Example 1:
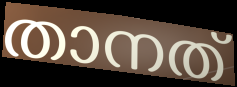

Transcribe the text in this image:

താനത്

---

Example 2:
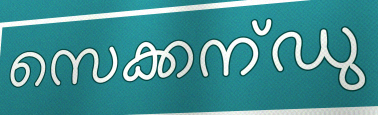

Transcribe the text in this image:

സെക്കന്ഡു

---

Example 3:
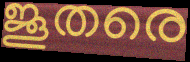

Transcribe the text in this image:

ജൂതരെ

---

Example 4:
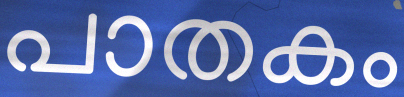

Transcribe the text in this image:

പാതകം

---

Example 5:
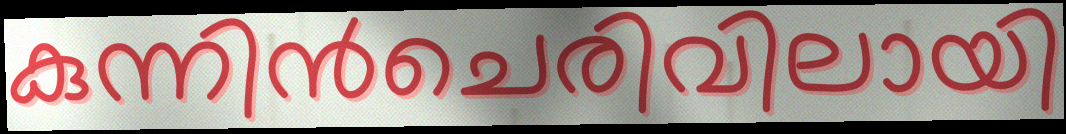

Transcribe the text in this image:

കുന്നിൻചെരിവിലായി